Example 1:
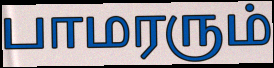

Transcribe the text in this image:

பாமரரும்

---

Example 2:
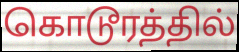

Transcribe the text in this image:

கொடூரத்தில்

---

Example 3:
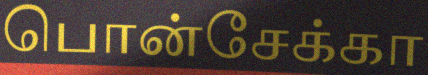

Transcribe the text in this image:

பொன்சேக்கா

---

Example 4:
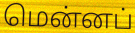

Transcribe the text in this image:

மென்னப்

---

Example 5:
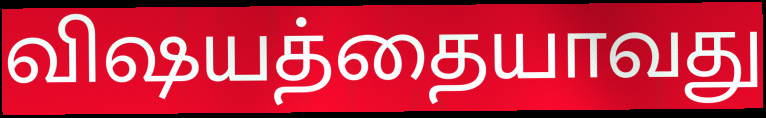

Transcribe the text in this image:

விஷயத்தையாவது